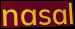
nasal